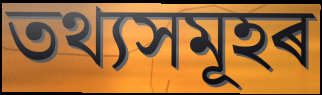
তথ্যসমূহৰ